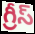
గ్రీస్